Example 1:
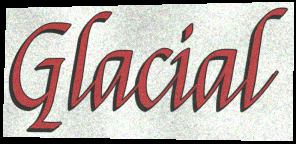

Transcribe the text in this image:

Glacial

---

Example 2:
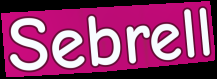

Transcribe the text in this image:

Sebrell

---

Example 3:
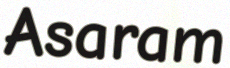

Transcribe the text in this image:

Asaram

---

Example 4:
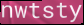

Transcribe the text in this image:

nwtsty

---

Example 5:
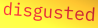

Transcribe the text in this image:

disgusted